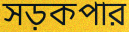
সড়কপার